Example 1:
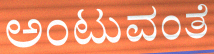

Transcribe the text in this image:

ಅಂಟುವಂತೆ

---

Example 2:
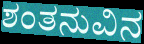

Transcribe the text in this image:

ಶಂತನುವಿನ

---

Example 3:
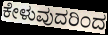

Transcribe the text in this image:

ಕೇಳುವುದರಿಂದ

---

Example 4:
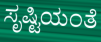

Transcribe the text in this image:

ಸೃಷ್ಟಿಯಂತೆ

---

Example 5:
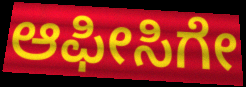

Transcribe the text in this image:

ಆಫೀಸಿಗೇ